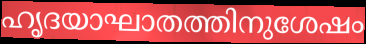
ഹൃദയാഘാതത്തിനുശേഷം